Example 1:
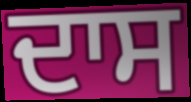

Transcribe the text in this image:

ਦਾਸ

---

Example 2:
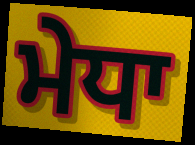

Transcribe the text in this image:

ਮੇਧਾ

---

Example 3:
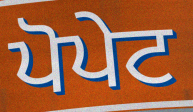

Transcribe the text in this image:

ਪੋਪੇਟ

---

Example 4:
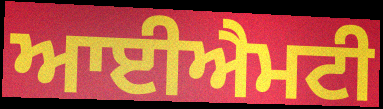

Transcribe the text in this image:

ਆਈਐਮਟੀ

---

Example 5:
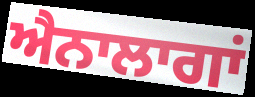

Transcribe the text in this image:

ਐਨਾਲਾਗਾਂ